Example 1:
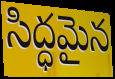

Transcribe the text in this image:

సిద్ధమైన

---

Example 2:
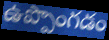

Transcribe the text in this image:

ఉప్పొంగడం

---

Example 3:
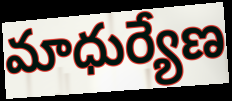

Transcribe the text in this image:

మాధుర్యేణ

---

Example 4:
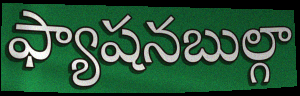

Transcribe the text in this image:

ఫ్యాషనబుల్గా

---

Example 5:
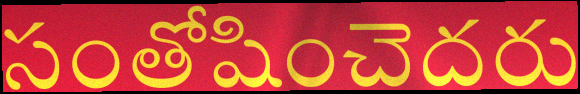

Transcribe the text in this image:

సంతోషించెదరు